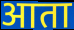
आता